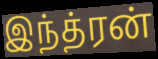
இந்த்ரன்